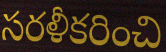
సరళీకరించి